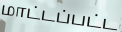
மாட்டப்பட்ட